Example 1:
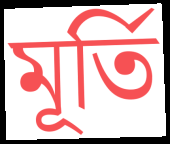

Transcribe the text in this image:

মূর্তি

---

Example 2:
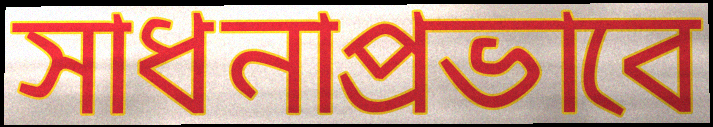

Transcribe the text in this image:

সাধনাপ্রভাবে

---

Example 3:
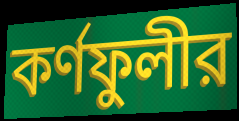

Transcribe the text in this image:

কর্ণফুলীর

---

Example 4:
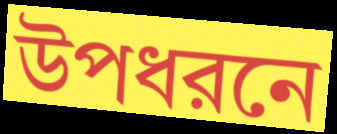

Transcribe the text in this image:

উপধরনে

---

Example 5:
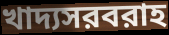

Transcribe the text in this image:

খাদ্যসরবরাহ